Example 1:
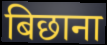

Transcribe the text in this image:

बिछाना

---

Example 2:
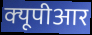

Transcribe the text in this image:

क्यूपीआर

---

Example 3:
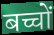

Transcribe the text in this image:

बच्चों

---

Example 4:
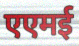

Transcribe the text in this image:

एएमई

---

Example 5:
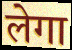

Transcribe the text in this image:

लेगा